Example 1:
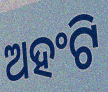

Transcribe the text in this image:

ଅହଂଟି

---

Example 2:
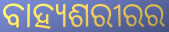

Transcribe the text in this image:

ବାହ୍ୟଶରୀରର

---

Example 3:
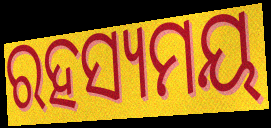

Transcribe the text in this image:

ରହସ୍ୟମୟ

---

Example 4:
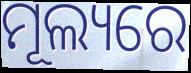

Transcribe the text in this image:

ମୂଲ୍ୟରେ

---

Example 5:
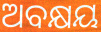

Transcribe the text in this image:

ଅବକ୍ଷୟ